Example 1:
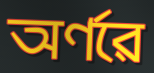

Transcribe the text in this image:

অৰ্ণৱে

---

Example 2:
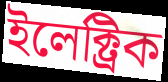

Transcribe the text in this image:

ইলেক্ট্ৰিক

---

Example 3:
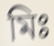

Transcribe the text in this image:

মিঃ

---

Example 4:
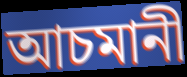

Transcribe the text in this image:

আচমানী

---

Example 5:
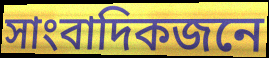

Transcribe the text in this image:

সাংবাদিকজনে